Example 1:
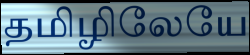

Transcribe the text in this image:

தமிழிலேயே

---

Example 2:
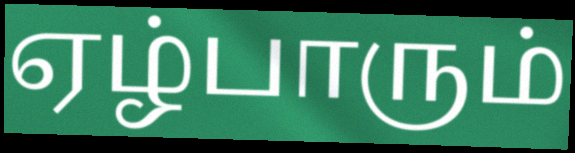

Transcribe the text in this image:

ஏழ்பாரும்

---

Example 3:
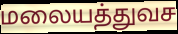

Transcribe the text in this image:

மலையத்துவச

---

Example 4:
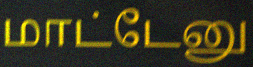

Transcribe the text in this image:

மாட்டேனு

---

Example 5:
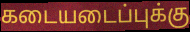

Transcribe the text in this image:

கடையடைப்புக்கு